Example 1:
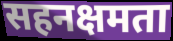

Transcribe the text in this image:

सहनक्षमता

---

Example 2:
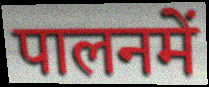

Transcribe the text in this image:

पालनमें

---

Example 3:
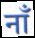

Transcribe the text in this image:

नाँ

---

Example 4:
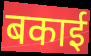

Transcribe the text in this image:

बकाई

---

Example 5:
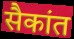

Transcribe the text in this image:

सैकांत